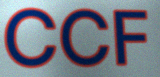
CCF